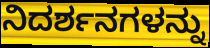
ನಿದರ್ಶನಗಳನ್ನು